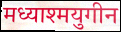
मध्याश्मयुगीन